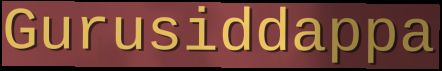
Gurusiddappa